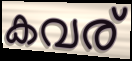
കവര്